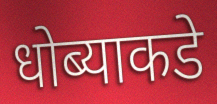
धोब्याकडे